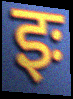
इः